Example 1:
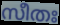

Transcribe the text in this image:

സീതഃ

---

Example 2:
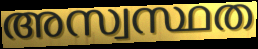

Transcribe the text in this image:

അസ്വസ്ഥത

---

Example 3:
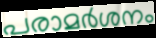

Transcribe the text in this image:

പരാമർശനം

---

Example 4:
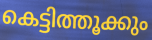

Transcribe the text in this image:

കെട്ടിത്തൂക്കും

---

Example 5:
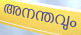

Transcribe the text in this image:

അനന്തവും